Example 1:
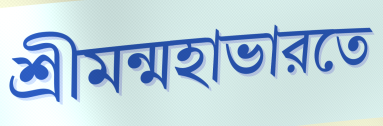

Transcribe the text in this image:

শ্রীমন্মহাভারতে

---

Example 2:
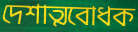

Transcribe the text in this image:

দেশাত্মবোধক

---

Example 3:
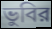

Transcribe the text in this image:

ভুবির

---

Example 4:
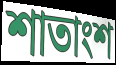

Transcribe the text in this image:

শাতাংশ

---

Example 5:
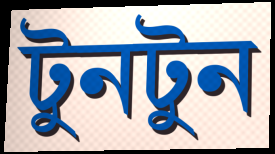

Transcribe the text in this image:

টুনটুন